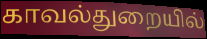
காவல்துறையில்